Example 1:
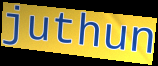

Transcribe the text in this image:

juthun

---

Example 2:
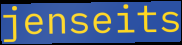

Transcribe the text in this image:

jenseits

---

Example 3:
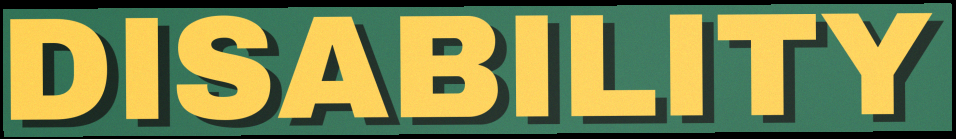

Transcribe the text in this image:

DISABILITY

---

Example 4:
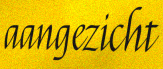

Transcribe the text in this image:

aangezicht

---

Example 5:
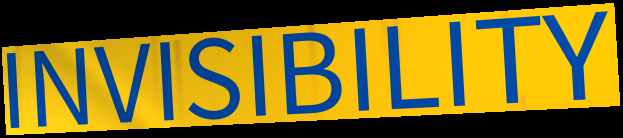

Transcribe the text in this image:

INVISIBILITY